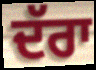
ਦੱਰਾ